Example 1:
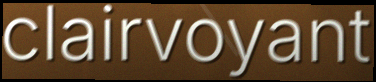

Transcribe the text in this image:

clairvoyant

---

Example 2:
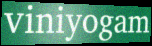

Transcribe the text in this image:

viniyogam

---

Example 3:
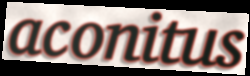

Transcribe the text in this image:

aconitus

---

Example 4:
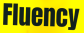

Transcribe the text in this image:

Fluency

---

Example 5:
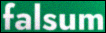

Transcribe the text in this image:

falsum